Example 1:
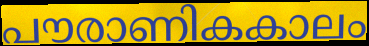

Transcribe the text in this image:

പൗരാണികകാലം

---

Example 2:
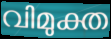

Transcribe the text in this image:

വിമുക്ത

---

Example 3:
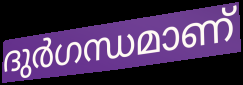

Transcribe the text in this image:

ദുർഗന്ധമാണ്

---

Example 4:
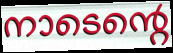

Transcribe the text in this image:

നാടെന്റെ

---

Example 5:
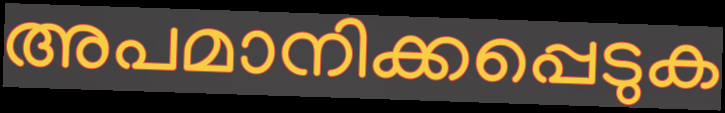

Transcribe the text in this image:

അപമാനിക്കപ്പെടുക